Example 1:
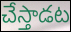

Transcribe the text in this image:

చేస్తాడట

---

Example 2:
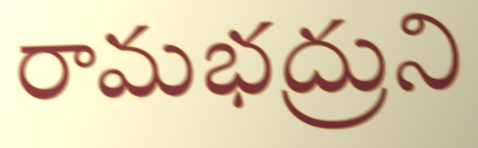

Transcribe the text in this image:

రామభద్రుని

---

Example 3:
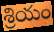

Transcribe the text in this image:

శ్రియం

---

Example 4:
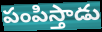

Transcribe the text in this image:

పంపిస్తాడు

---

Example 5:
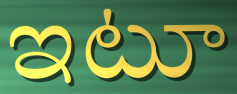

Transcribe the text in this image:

ఇటూ